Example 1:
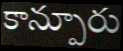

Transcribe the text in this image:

కాన్పూరు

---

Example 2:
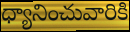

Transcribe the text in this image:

ధ్యానించువారికి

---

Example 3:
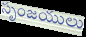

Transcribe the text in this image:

సృంజయులు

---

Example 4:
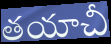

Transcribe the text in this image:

తయాచీ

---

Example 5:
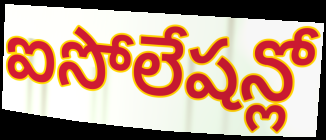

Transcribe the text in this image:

ఐసోలేషన్లో